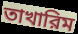
তাখারিম